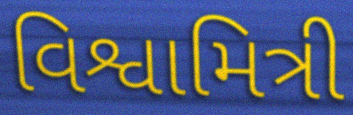
વિશ્વામિત્રી